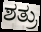
ಶತ್ರು